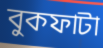
বুকফাটা